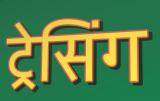
ट्रेसिंग